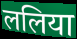
ललिया